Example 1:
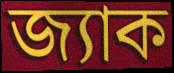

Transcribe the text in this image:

জ্যাক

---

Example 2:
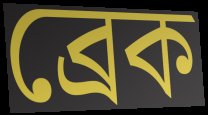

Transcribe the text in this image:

ব্রেক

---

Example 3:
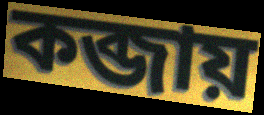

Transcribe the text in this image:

কব্জায়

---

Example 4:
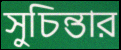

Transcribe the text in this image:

সুচিন্তার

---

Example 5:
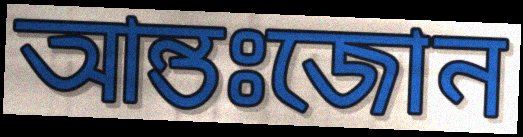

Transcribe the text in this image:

আন্তঃজোন